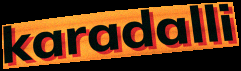
karadalli